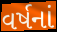
વર્ષનાં